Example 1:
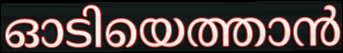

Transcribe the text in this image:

ഓടിയെത്താൻ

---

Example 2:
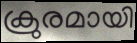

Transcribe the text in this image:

ക്രുരമായി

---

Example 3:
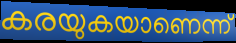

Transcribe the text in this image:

കരയുകയാണെന്ന്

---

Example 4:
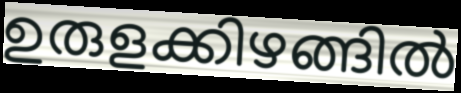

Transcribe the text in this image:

ഉരുളക്കിഴങ്ങിൽ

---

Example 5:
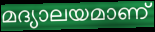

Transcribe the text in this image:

മദ്യാലയമാണ്